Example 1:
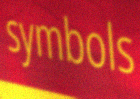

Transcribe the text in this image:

symbols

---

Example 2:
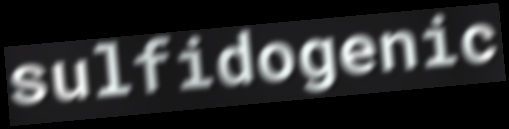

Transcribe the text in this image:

sulfidogenic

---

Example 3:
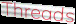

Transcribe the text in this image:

Threads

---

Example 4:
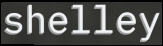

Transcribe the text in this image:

shelley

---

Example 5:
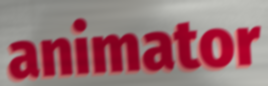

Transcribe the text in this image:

animator